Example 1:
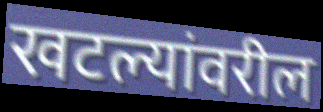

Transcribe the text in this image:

खटल्यांवरील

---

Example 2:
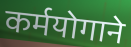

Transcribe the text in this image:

कर्मयोगाने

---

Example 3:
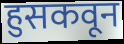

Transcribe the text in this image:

हुसकवून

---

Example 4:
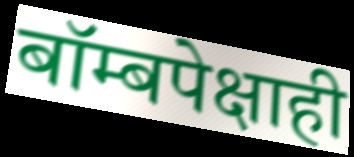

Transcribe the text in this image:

बॉम्बपेक्षाही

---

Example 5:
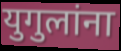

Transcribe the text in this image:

युगुलांना